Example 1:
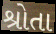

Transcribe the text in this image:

શ્રોતા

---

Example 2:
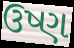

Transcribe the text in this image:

ઉષ્ણ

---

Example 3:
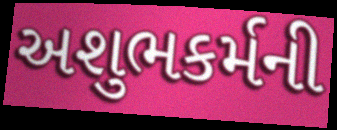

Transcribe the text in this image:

અશુભકર્મની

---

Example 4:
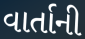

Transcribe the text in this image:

વાર્તાની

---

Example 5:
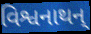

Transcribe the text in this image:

વિશ્વનાથન્